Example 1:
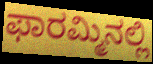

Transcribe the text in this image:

ಫಾರಮ್ಮಿನಲ್ಲಿ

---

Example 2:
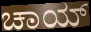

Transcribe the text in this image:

ಚಾಯ್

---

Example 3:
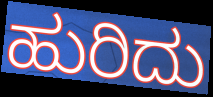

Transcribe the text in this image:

ಹುರಿದು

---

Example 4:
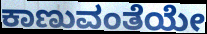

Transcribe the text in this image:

ಕಾಣುವಂತೆಯೇ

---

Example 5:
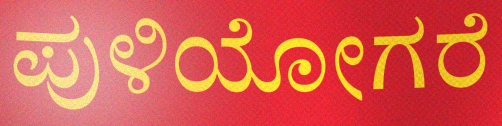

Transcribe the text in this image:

ಪುಳಿಯೋಗರೆ